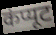
कंप्यूट